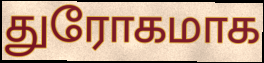
துரோகமாக